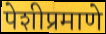
पेशीप्रमाणे